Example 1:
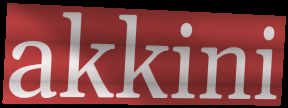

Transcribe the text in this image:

akkini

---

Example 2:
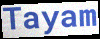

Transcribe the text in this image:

Tayam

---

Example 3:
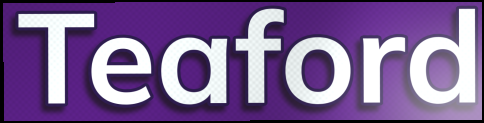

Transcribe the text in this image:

Teaford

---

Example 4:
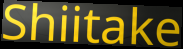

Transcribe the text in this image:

Shiitake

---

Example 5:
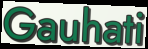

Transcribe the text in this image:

Gauhati